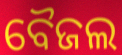
ବୈଜଲ